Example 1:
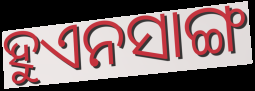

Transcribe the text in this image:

ହୁଏନସାଙ୍ଗ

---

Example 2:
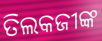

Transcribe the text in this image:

ତିଲକଜୀଙ୍କ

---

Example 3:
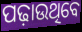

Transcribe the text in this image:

ପଢ଼ାଉଥିବେ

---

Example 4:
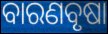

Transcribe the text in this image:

ବାରଣବୃଷା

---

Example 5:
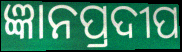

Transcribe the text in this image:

ଜ୍ଞାନପ୍ରଦୀପ